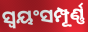
ସ୍ୱୟଂସମ୍ପୂର୍ଣ୍ଣ